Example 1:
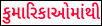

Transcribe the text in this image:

કુમારિકાઓમાંથી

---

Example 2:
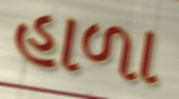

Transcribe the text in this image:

હાળા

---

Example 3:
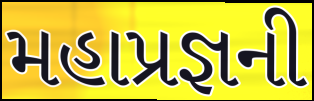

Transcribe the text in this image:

મહાપ્રજ્ઞની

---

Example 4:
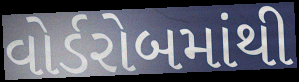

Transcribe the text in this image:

વોર્ડરોબમાંથી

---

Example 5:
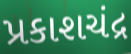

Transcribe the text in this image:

પ્રકાશચંદ્ર